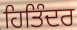
ਹਿਤਿੰਦਰ